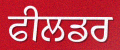
ਫੀਲਡਰ